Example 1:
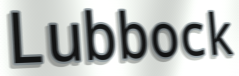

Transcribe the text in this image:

Lubbock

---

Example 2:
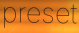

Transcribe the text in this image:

preset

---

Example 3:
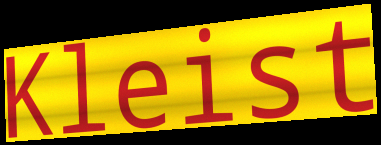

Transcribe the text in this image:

Kleist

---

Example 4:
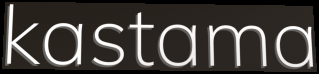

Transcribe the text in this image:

kastama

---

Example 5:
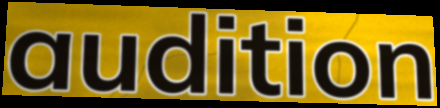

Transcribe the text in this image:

audition